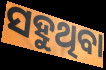
ସହୁଥିବା